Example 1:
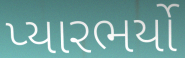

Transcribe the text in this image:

પ્યારભર્યો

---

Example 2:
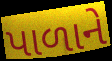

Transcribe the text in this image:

પાળાને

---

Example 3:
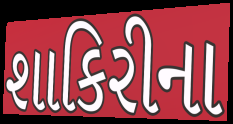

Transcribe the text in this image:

શાકિરીના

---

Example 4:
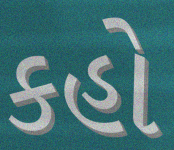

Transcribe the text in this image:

કહો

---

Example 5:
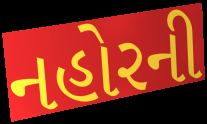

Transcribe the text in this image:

નહોરની